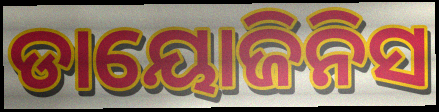
ଡାୟୋଜିନିସ